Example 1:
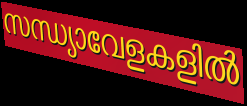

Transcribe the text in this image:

സന്ധ്യാവേളകളിൽ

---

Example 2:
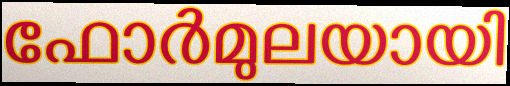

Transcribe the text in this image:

ഫോർമുലയായി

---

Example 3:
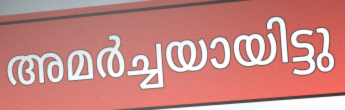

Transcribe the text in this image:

അമർച്ചയായിട്ടു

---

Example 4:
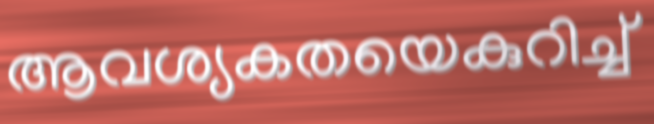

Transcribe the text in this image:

ആവശ്യകതയെകുറിച്ച്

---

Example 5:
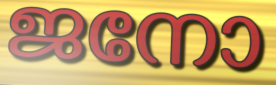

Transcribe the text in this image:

ജനോ